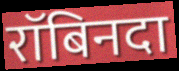
रॉबिनदा